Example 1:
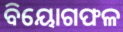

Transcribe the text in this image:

ବିୟୋଗଫଳ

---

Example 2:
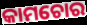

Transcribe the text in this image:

କାମଚୋର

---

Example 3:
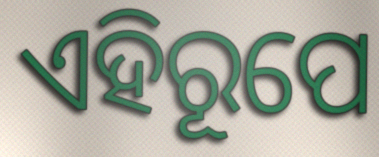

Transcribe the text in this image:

ଏହିରୂପେ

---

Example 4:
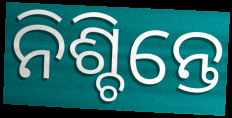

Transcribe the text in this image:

ନିଶ୍ଚିନ୍ତେ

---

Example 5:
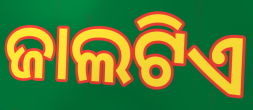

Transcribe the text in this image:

ଜାଲଟିଏ